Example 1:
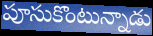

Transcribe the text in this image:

పూసుకొంటున్నాడు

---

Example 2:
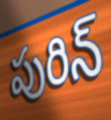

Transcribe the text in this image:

పురిన్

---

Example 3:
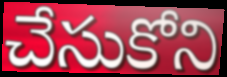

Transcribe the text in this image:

చేసుకోని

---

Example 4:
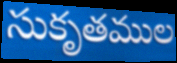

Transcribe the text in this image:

సుకృతముల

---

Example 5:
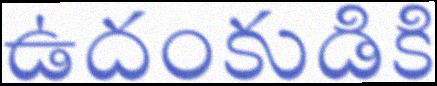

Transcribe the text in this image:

ఉదంకుడికి